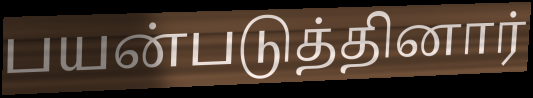
பயன்படுத்தினார்